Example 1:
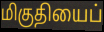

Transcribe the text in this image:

மிகுதியைப்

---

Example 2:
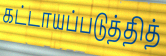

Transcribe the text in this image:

கட்டாயப்படுத்தித்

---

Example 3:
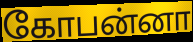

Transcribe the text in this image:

கோபன்னா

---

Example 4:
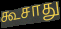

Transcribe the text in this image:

கூசாது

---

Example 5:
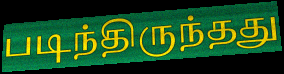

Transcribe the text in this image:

படிந்திருந்தது